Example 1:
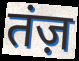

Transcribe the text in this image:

तंज़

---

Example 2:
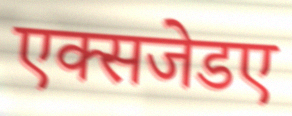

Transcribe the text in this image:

एक्सजेडए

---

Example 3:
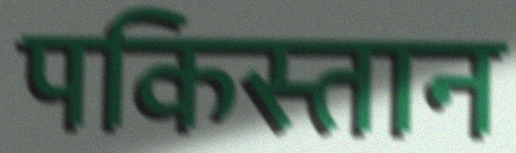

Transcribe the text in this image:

पकिस्तान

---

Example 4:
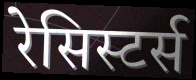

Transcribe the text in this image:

रेसिस्टर्स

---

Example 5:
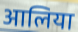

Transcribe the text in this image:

आलिया